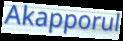
Akapporul